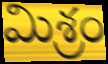
మిశ్రం